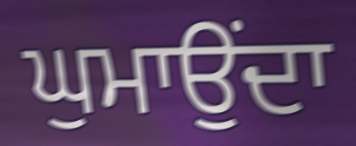
ਘੁਮਾਉਂਦਾ